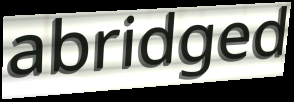
abridged